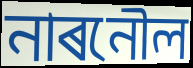
নাৰনৌল